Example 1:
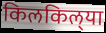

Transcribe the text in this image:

किलकिल्या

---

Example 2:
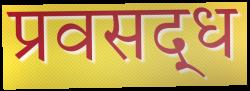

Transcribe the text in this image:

प्रवसद्ध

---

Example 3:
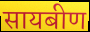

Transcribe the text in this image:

सायबीण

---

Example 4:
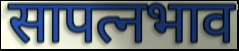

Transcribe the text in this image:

सापत्नभाव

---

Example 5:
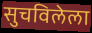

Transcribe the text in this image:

सुचविलेला